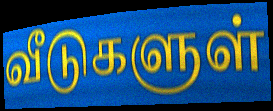
வீடுகளுள்